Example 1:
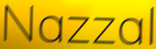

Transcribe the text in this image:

Nazzal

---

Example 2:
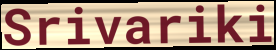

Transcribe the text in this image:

Srivariki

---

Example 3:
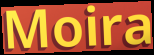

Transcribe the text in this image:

Moira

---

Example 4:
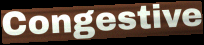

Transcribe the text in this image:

Congestive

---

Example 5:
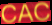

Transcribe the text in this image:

CAC